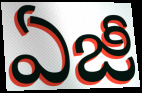
ఏజీ